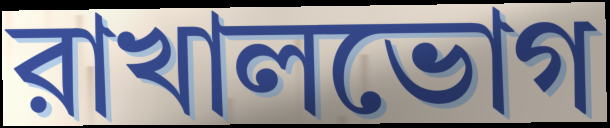
রাখালভোগ